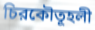
চিরকৌতূহলী